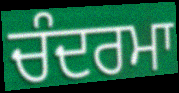
ਚੰਦਰਮਾ